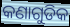
କଣାଗୁଡିକ